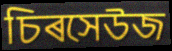
চিৰসেউজ